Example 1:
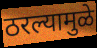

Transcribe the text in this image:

ठरल्यामुळे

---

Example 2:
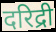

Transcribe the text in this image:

दरिद्री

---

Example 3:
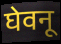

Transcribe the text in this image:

घेवनू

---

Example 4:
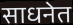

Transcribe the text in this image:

साधनेत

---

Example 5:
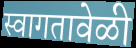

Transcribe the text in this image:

स्वागतावेळी